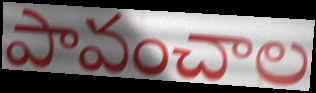
పావంచాల